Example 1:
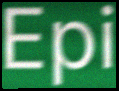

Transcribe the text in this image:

Epi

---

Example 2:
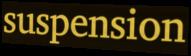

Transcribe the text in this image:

suspension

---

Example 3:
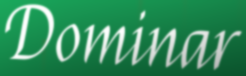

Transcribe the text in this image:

Dominar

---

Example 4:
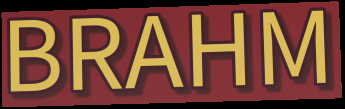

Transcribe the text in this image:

BRAHM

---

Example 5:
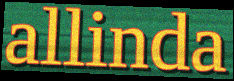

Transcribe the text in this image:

allinda